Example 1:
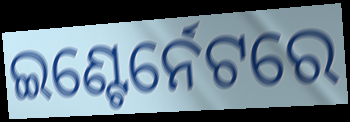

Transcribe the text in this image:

ଇଣ୍ଟେର୍ନେଟରେ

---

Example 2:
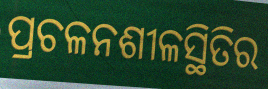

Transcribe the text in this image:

ପ୍ରଚଳନଶୀଳସ୍ଥିତିର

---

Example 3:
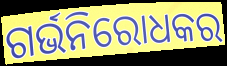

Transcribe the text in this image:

ଗର୍ଭନିରୋଧକର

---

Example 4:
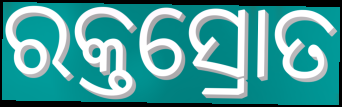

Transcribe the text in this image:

ରକ୍ତସ୍ରୋତ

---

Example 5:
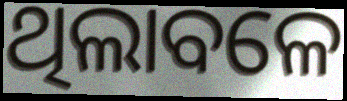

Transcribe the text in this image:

ଥିଲାବଳେ